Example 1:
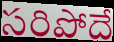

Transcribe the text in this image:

సరిపోదే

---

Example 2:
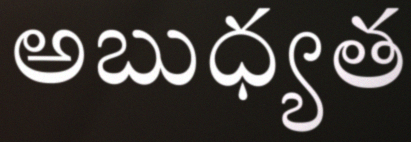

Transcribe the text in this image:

అబుధ్యత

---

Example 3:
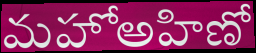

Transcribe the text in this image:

మహోఅహిణో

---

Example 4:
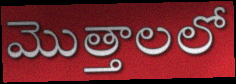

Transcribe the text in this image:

మొత్తాలలో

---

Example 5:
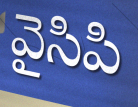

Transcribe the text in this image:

వైసిపి